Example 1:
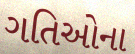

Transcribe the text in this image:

ગતિઓના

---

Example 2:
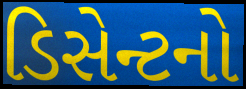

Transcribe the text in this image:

ડિસેન્ટનો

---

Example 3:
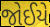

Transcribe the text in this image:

જોઈયે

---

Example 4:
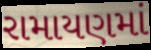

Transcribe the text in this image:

રામાયણમાં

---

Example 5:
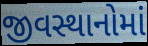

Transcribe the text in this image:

જીવસ્થાનોમાં